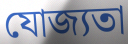
যোজ্যতা